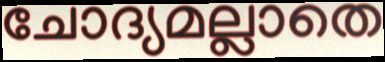
ചോദ്യമല്ലാതെ